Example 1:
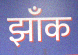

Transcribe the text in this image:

झाँक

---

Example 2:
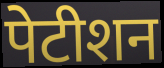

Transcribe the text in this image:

पेटीशन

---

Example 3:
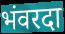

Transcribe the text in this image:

भंवरदा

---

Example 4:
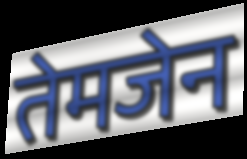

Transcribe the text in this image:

तेमजेन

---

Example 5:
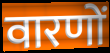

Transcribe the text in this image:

वारणों